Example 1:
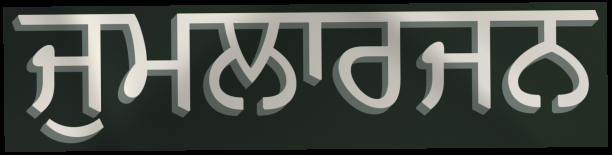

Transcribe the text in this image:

ਜੁਮਲਾਰਜਨ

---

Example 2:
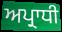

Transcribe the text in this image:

ਅਪ੍ਰਾਧੀ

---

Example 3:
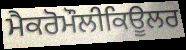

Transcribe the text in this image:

ਮੈਕਰੋਮੌਲੀਕਿਊਲਰ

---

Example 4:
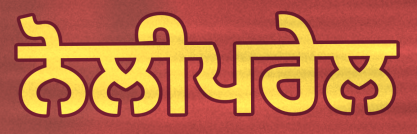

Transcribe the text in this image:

ਨੋਲੀਪਰੇਲ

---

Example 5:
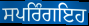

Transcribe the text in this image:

ਸਪਰਿੰਗਇਹ